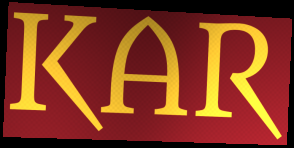
KAR